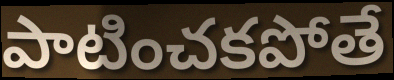
పాటించకపోతే